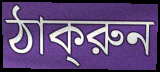
ঠাক্‌রুন